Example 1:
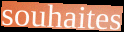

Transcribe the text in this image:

souhaites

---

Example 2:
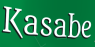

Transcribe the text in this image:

Kasabe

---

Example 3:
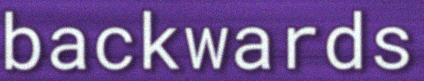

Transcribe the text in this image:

backwards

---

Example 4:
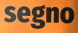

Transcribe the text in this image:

segno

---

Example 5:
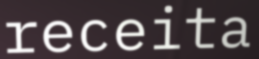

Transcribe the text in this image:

receita